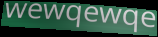
wewqewqe